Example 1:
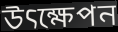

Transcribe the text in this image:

উৎক্ষেপন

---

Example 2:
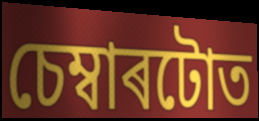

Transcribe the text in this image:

চেম্বাৰটোত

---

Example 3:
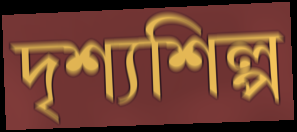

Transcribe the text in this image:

দৃশ্যশিল্প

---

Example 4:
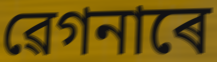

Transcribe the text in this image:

ৱেগনাৰে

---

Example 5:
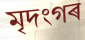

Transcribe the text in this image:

মৃদংগৰ